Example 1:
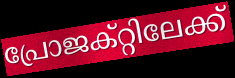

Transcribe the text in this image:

പ്രോജക്റ്റിലേക്ക്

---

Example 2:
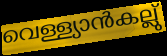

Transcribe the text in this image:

വെള്ള്യാൻകല്ലു്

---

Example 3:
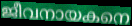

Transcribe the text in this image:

ജീവനായകനെ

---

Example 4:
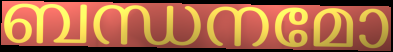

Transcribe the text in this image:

ബന്ധനമോ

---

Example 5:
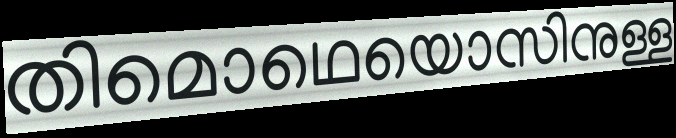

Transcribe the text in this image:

തിമൊഥെയൊസിനുള്ള